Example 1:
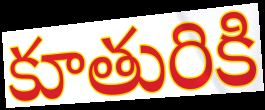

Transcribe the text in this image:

కూతురికి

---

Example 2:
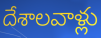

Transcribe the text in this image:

దేశాలవాళ్లు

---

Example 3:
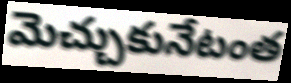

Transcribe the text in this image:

మెచ్చుకునేటంత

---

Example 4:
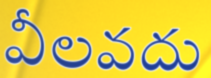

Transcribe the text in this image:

వీలవదు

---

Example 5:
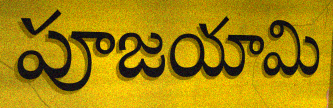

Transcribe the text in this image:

పూజయామి